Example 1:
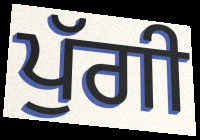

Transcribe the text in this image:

ਪੁੱਗੀ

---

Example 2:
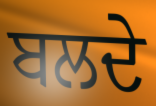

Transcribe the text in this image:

ਬਲਦੇ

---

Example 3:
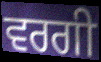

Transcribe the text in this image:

ਵਰਗੀ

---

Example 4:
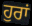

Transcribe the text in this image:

ਹੁਰਾਂ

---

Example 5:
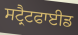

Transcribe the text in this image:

ਸਟ੍ਰੈਟਫਾਈਡ